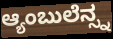
ಆ್ಯಂಬುಲೆನ್ಸ್ನ